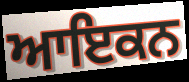
ਆਇਕਨ